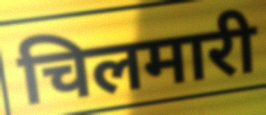
चिलमारी